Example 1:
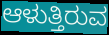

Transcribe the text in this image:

ಆಳುತ್ತಿರುವ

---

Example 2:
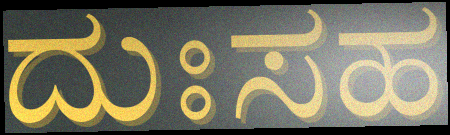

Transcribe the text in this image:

ದುಃಸಹ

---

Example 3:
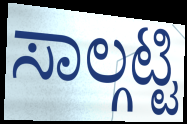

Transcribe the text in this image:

ಸಾಲ್ಗಟ್ಟಿ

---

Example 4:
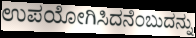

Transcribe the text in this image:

ಉಪಯೋಗಿಸಿದನೆಂಬುದನ್ನು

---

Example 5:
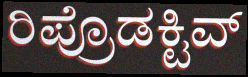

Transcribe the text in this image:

ರಿಪ್ರೊಡಕ್ಟಿವ್